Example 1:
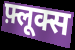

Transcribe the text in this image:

फ़्लूक्स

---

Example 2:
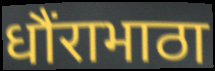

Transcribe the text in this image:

धौंराभाठा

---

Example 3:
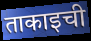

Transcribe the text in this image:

ताकाइची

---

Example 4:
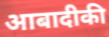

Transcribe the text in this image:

आबादीकी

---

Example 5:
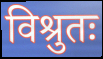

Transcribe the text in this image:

विश्रुतः